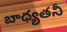
బాధ్యతనీ